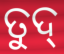
ତୁଦ୍